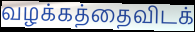
வழக்கத்தைவிடக்